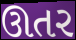
ઊતર